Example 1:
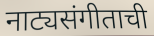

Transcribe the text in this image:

नाट्यसंगीताची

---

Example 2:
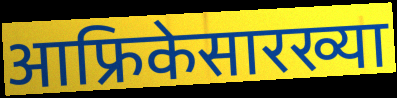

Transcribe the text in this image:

आफ्रिकेसारख्या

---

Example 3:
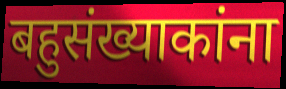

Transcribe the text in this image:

बहुसंख्याकांना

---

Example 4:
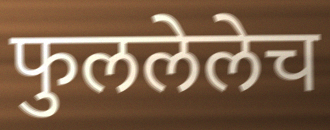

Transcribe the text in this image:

फुललेलेच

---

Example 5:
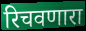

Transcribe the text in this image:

रिचवणारा